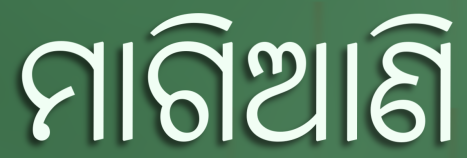
ମାଗିଆଣି